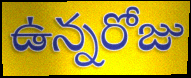
ఉన్నరోజు